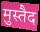
मुस्तैद